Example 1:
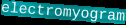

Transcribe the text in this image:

electromyogram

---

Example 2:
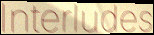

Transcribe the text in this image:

Interludes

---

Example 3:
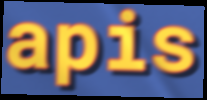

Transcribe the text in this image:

apis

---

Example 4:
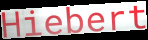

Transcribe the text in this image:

Hiebert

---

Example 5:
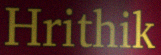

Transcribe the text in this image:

Hrithik